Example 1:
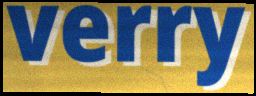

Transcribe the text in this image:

verry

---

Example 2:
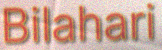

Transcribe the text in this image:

Bilahari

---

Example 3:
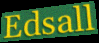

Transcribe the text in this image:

Edsall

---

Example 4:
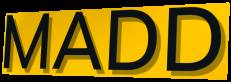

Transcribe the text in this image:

MADD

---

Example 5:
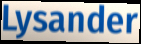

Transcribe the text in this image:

Lysander